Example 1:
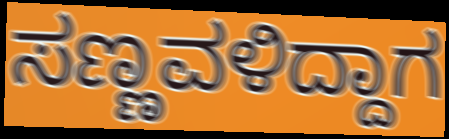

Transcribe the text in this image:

ಸಣ್ಣವಳಿದ್ದಾಗ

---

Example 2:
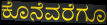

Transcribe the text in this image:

ಕೊನೆವರೆಗೂ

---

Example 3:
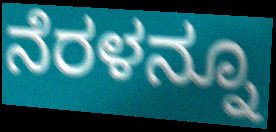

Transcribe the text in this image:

ನೆರಳನ್ನೂ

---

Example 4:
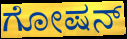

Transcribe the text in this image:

ಗೋಷನ್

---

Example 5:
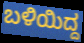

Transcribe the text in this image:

ಬಳಿಯಿದ್ದ